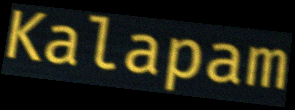
Kalapam